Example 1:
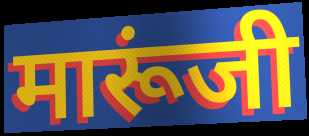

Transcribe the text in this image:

मारूंजी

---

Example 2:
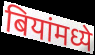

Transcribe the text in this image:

बियांमध्ये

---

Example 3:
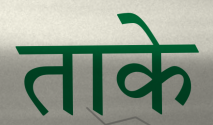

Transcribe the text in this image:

ताके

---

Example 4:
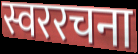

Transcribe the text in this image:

स्वररचना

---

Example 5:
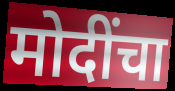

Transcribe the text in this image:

मोदींचा